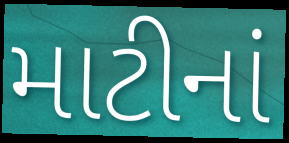
માટીનાં